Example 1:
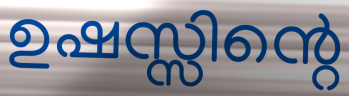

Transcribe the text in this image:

ഉഷസ്സിന്റെ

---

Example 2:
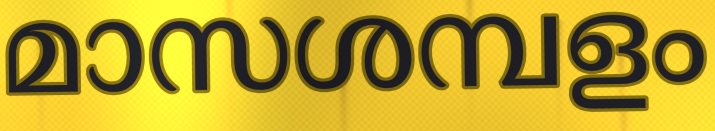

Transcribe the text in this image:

മാസശമ്പളം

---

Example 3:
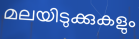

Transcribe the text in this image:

മലയിടുക്കുകളും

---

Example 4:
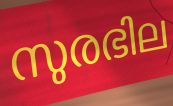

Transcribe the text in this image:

സുരഭില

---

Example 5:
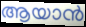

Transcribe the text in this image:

ആയാൻ